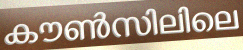
കൗൺസിലിലെ